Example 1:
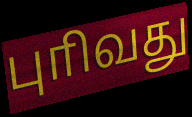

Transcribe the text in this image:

புரிவது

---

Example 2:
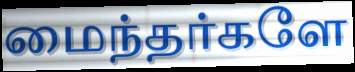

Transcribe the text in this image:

மைந்தர்களே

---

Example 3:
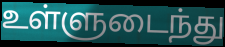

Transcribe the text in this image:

உள்ளுடைந்து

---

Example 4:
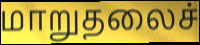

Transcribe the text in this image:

மாறுதலைச்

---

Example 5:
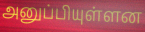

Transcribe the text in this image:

அனுப்பியுள்ளன